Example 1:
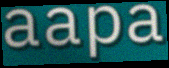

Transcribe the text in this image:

aapa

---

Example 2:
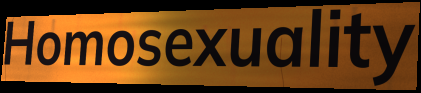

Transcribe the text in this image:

Homosexuality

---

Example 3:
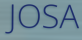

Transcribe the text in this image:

JOSA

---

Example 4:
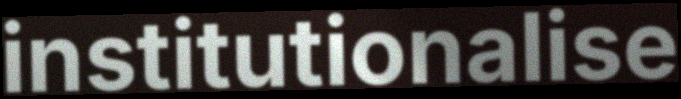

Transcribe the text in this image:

institutionalise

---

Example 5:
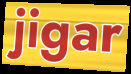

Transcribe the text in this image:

jigar